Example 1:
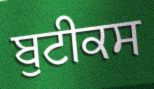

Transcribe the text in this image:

ਬੁਟੀਕਸ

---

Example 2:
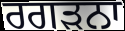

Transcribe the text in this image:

ਰਗੜਨਾ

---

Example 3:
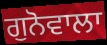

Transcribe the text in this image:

ਗੁਨੋਵਾਲਾ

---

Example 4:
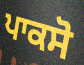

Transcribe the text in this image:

ਪਾਕਸੋ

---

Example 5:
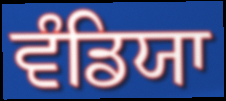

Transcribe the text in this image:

ਵੰਡਿਯਾ